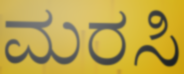
ಮರಸಿ